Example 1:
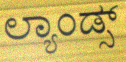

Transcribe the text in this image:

ಲ್ಯಾಂಡ್ಸ್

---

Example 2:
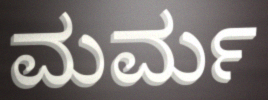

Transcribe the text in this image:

ಮರ್ಮ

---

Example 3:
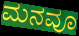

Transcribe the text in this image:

ಮನವೂ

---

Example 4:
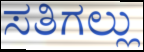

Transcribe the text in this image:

ಸತಿಗಲ್ಲು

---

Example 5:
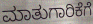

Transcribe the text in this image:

ಮಾತುಗಾರಿಕೆಗೆ